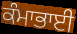
ਕੰਮਾਭਾਈ